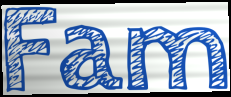
Fam